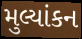
મુલ્યાંકન